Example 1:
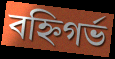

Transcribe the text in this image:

বহ্নিগর্ভ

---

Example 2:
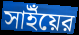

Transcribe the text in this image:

সাইঁয়ের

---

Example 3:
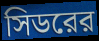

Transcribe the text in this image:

সিডরের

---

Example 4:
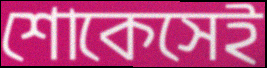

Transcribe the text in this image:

শোকেসেই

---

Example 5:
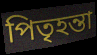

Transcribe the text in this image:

পিতৃহন্তা